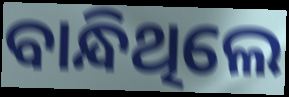
ବାନ୍ଧିଥିଲେ